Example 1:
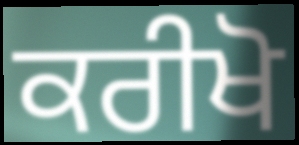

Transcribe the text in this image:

ਕਰੀਖੋ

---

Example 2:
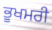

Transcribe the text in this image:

ਭੂਖਮਰੀ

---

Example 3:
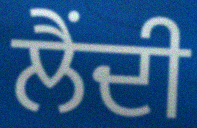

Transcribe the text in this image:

ਲੈਂਦੀ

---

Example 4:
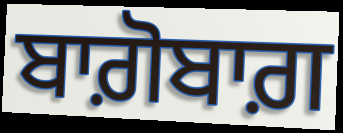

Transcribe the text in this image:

ਬਾਗ਼ੋਬਾਗ਼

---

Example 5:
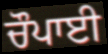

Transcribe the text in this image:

ਚੌਪਾਈ